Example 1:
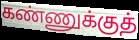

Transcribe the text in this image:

கண்ணுக்குத்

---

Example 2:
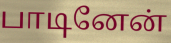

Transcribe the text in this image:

பாடினேன்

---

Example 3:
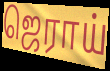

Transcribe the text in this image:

ஜெராய்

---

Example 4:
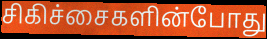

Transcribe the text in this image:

சிகிச்சைகளின்போது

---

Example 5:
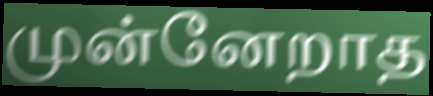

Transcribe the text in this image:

முன்னேறாத